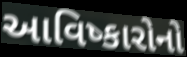
આવિષ્કારોનો